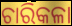
ଚାରିକଳା